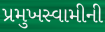
પ્રમુખસ્વામીની